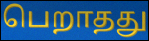
பெறாதது